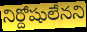
నిర్దోషులేనని